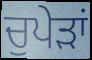
ਚੁਪੇੜਾਂ